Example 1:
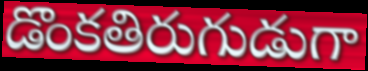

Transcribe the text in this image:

డొంకతిరుగుడుగా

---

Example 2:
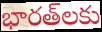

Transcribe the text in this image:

భారత్‌లకు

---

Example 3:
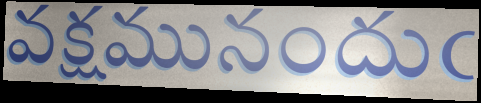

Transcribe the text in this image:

వక్షమునందుఁ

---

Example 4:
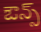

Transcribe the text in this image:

ఔన్స్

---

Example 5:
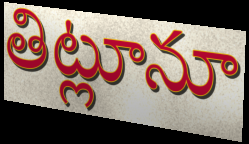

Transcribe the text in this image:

తిట్లూనూ